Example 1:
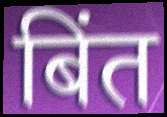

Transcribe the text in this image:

बिंत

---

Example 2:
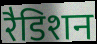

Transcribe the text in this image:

रैडिशन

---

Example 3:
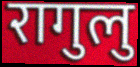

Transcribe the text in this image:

रागुलु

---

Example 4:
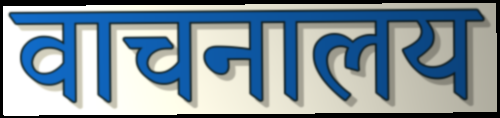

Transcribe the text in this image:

वाचनालय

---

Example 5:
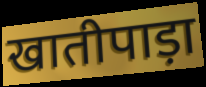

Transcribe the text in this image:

खातीपाड़ा